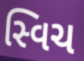
સ્વિચ